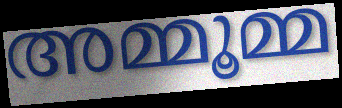
അമ്മൂമ്മ